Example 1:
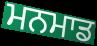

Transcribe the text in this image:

ਮਨਮਾਡ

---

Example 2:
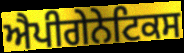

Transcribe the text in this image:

ਐਪੀਗੇਨੇਟਿਕਸ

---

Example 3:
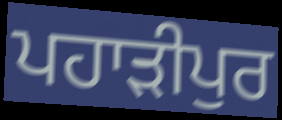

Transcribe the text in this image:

ਪਹਾੜੀਪੁਰ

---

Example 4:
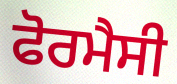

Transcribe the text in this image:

ਫੋਰਮੈਸੀ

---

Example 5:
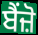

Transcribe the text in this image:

ਬੈਂਜ਼ੋ